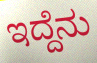
ಇದ್ದೆನು